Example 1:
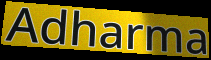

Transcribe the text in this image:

Adharma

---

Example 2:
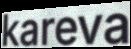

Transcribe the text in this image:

kareva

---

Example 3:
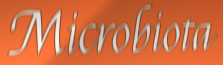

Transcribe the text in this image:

Microbiota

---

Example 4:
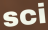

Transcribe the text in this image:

sci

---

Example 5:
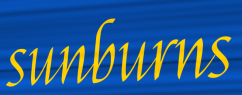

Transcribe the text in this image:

sunburns